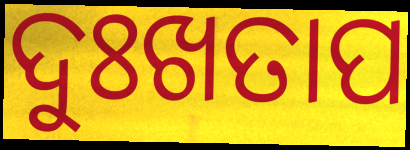
ଦୁଃଖତାପ